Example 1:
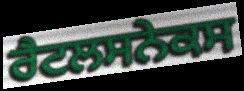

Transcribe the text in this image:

ਰੈਟਲਸਨੇਕਸ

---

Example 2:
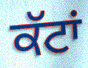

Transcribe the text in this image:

ਕੱਟਾਂ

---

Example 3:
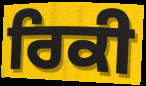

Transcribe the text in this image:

ਰਿਕੀ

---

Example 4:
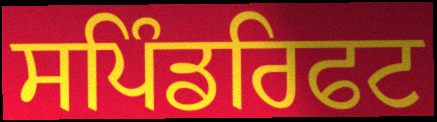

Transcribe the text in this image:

ਸਪਿੰਡਰਿਫਟ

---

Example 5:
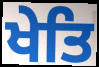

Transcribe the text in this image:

ਖੇਤਿ